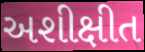
અશીક્ષીત